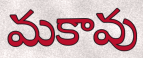
మకావు